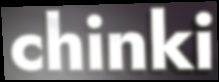
chinki